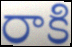
రాకి